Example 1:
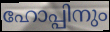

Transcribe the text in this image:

ഹോപ്പിനും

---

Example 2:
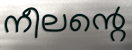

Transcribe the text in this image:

നീലന്റെ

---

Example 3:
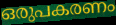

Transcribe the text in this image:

ഒരുപകരണം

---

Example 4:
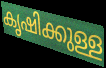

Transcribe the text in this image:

കൃഷിക്കുള്ള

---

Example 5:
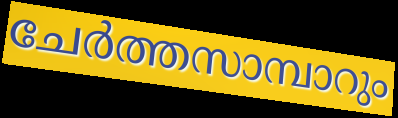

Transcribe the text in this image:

ചേർത്തസാമ്പാറും